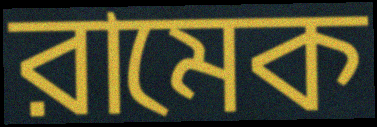
রামেক